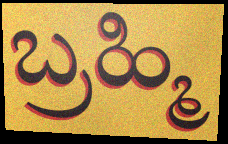
ಬ್ರಹ್ಮಿ